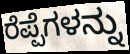
ರೆಪ್ಪೆಗಳನ್ನು